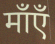
माँएँ